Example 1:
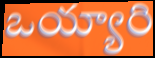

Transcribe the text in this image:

ఒయ్యారి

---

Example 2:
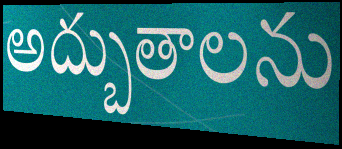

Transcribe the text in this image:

అద్బుతాలను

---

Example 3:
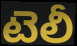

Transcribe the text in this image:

టెలీ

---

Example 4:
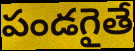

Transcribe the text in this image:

పండగైతే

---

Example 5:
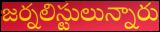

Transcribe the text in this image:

జర్నలిస్టులున్నారు